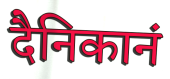
दैनिकानं